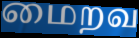
மைறவ